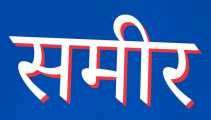
समीर